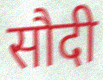
सौदी